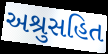
અશ્રુસહિત